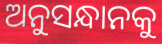
ଅନୁସନ୍ଧାନକୁ